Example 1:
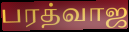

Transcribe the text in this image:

பரத்வாஜ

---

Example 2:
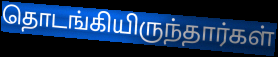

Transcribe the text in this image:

தொடங்கியிருந்தார்கள்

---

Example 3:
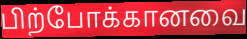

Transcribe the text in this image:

பிற்போக்கானவை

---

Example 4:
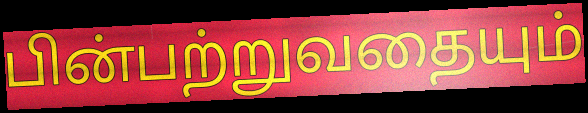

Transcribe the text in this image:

பின்பற்றுவதையும்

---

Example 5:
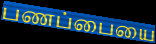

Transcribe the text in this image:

பணப்பையை